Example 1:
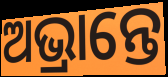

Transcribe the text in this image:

ଅଭ୍ରାନ୍ତେ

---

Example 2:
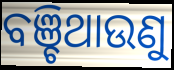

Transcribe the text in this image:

ବଞ୍ଚିଥାଉଣୁ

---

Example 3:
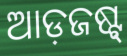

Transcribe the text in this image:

ଆଡ଼ଜଷ୍ଟ୍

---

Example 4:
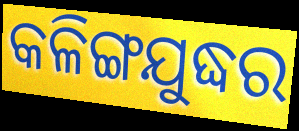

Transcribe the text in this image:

କଳିଙ୍ଗଯୁଦ୍ଧର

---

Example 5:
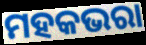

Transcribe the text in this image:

ମହକଭରା